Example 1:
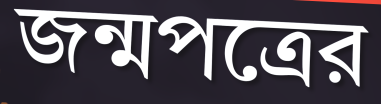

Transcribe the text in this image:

জন্মপত্রের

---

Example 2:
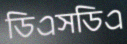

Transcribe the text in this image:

ডিএসডিএ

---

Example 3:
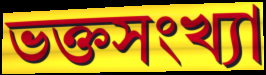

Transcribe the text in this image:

ভক্তসংখ্যা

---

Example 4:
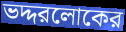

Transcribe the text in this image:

ভদ্দরলোকের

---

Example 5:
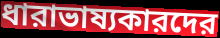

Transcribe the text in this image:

ধারাভাষ্যকারদের